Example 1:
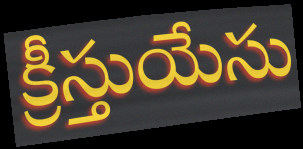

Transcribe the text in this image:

క్రీస్తుయేసు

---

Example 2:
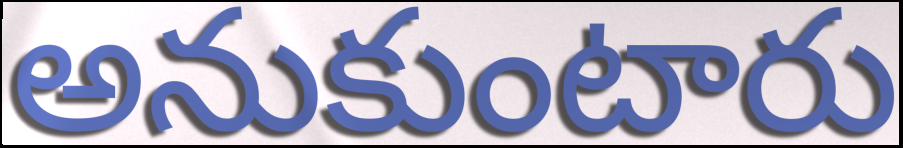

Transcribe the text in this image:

అనుకుంటారు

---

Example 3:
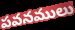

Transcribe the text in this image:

పవనములు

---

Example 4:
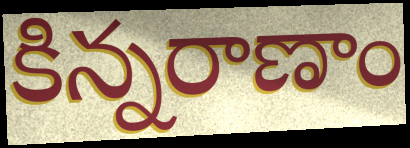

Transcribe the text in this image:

కిన్నరాణాం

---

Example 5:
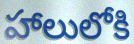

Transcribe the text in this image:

హాలులోకి